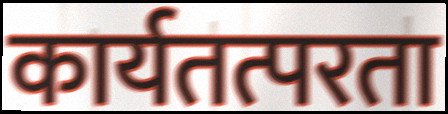
कार्यतत्परता